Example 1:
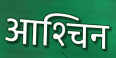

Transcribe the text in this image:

आश्चिन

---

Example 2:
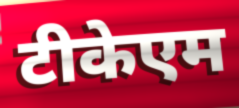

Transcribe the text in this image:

टीकेएम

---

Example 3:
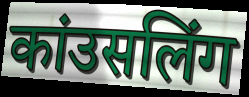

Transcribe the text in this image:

कांउसलिंग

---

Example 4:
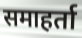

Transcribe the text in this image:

समाहर्ता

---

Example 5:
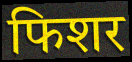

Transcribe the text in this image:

फिशर